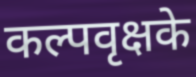
कल्पवृक्षके